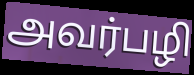
அவர்பழி